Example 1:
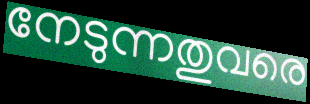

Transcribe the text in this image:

നേടുന്നതുവരെ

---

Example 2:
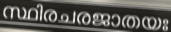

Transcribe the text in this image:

സ്ഥിരചരജാതയഃ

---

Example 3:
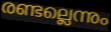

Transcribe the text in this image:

രണ്ടല്ലെന്നും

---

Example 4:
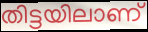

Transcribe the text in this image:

തിട്ടയിലാണ്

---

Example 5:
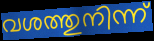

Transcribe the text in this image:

വശത്തുനിന്ന്